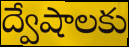
ద్వేషాలకు